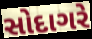
સોદાગરે